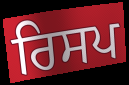
ਰਿਸਪ